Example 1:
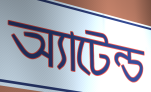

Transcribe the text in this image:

অ্যাটেন্ড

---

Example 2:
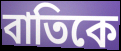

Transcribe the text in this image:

বাতিকে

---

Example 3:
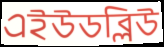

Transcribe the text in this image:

এইউডব্লিউ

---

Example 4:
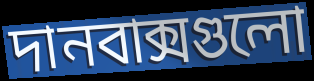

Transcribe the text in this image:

দানবাক্সগুলো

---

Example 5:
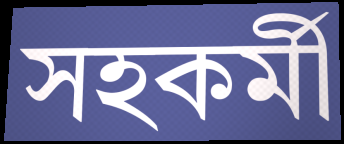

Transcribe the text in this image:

সহকর্মী